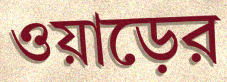
ওয়াড়ের